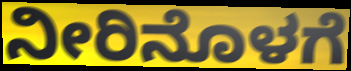
ನೀರಿನೊಳಗೆ